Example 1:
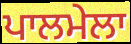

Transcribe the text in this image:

ਪਾਲਮੇਲਾ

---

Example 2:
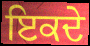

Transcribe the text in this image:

ਇਕਦੇ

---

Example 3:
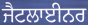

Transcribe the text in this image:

ਜੈਟਲਾਈਨਰ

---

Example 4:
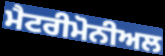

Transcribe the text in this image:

ਮੈਟਰੀਮੋਨੀਅਲ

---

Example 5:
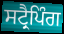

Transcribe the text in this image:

ਸਟ੍ਰੈਪਿੰਗ